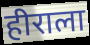
हीराला